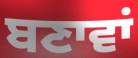
ਬਣਾਵਾਂ